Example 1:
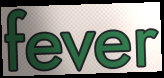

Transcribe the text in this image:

fever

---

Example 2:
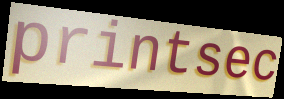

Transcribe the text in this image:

printsec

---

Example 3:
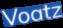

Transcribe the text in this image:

Voatz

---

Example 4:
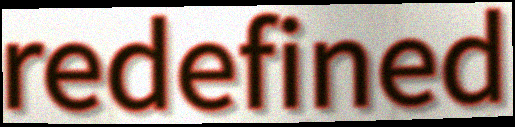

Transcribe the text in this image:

redefined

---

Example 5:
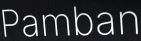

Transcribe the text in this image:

Pamban